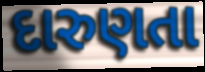
દારુણતા